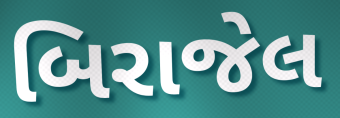
બિરાજેલ